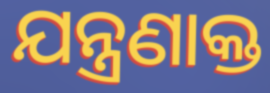
ଯନ୍ତ୍ରଣାକ୍ତ